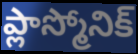
ప్లాస్మోనిక్